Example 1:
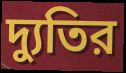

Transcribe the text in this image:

দ্যুতির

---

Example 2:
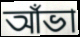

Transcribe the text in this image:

আঁভা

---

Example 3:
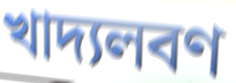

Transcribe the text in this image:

খাদ্যলবণ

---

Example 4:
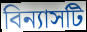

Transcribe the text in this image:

বিন্যাসটি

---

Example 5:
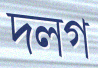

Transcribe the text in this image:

দলগ